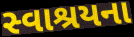
સ્વાશ્રયના